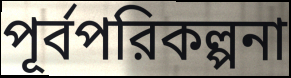
পূর্বপরিকল্পনা